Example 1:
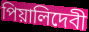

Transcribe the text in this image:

পিয়ালিদেবী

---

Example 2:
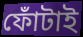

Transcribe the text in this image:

ফোঁটাই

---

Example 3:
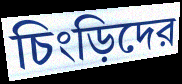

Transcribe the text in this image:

চিংড়িদের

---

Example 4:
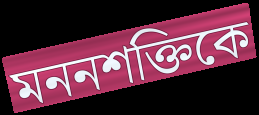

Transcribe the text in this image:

মননশক্তিকে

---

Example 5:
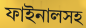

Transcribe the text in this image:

ফাইনালসহ